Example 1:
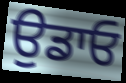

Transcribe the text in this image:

ਉਡਾਓ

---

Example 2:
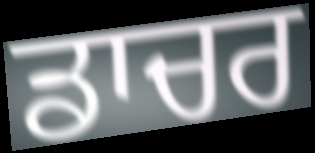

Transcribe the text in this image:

ਡਾਚਰ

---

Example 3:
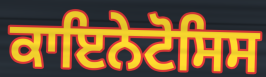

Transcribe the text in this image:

ਕਾਇਨੇਟੋਸਿਸ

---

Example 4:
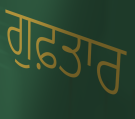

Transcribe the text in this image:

ਗੁਫ਼ਤਾਰ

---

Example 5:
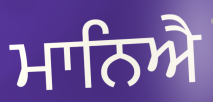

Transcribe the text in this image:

ਮਾਨਿਐ